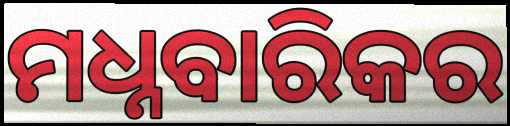
ମଧ୍ନବାରିକର